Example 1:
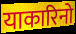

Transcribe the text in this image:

याकारिनो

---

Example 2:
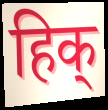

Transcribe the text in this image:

हिक्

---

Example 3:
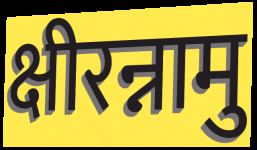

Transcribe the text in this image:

क्षीरन्नामु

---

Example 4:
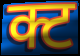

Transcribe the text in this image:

क्ट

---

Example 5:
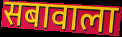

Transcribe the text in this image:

सबावाला